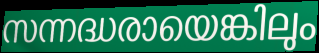
സന്നദ്ധരായെങ്കിലും